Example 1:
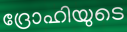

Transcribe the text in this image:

ദ്രോഹിയുടെ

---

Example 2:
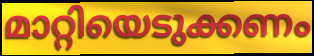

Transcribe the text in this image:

മാറ്റിയെടുക്കണം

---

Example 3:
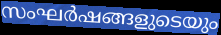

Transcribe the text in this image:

സംഘർഷങ്ങളുടെയും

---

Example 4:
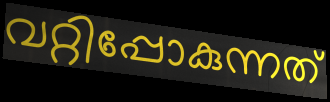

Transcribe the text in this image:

വറ്റിപ്പോകുന്നത്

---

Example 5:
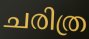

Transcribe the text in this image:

ചരിത്ര